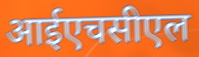
आईएचसीएल